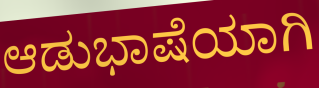
ಆಡುಭಾಷೆಯಾಗಿ